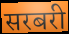
सरबरी